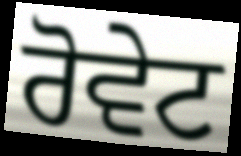
ਰੋਵੇਟ